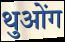
थुओंग